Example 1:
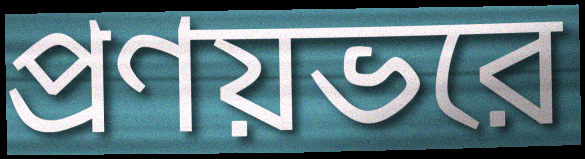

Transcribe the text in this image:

প্রণয়ভরে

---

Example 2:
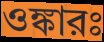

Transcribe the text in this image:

ওঙ্কারঃ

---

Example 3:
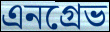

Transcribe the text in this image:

এনগ্রেভ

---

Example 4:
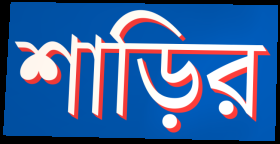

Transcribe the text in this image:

শাড়ির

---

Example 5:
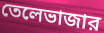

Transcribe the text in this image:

তেলেভাজার